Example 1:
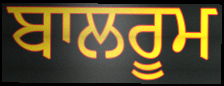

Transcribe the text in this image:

ਬਾਲਰੂਮ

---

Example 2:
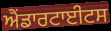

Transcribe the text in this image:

ਐਂਡਾਰਟਾਈਟਸ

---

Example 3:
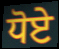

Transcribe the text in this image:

ਧੋਏ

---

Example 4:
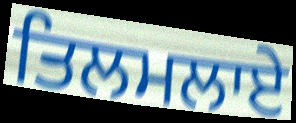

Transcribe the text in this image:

ਤਿਲਮਲਾਏ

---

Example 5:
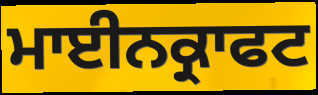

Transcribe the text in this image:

ਮਾਈਨਕ੍ਰਾਫਟ